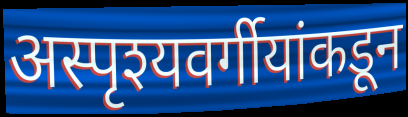
अस्पृश्यवर्गीयांकडून